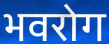
भवरोग